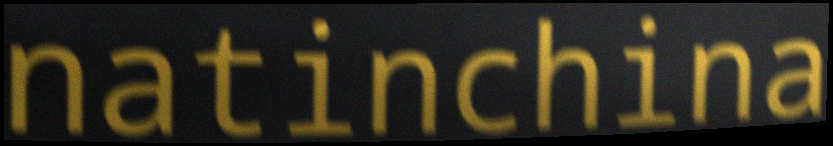
natinchina